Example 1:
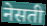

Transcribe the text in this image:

नेसती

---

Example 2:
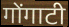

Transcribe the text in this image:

गोंगाटी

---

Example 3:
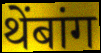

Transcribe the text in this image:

थेंबांग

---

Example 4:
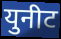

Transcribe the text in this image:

युनीट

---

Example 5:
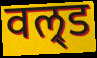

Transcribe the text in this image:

वल्र्ड